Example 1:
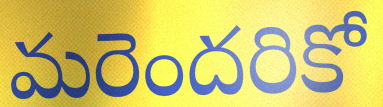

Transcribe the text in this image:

మరెందరికో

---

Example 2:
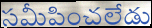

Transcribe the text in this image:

సమీపించలేడు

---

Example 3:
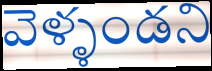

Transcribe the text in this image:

వెళ్ళండని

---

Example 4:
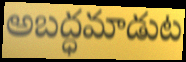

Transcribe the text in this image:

అబద్ధమాడుట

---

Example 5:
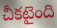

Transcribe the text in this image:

చీకటైంది